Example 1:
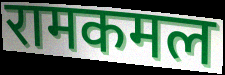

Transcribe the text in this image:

रामकमल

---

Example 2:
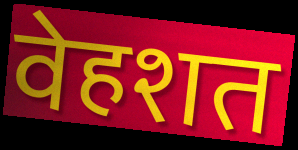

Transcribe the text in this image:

वेहशत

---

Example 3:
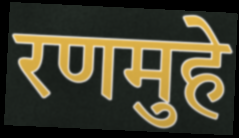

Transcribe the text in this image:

रणमुहे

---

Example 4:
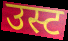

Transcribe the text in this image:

उस्ट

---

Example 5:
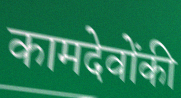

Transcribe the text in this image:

कामदेवोंकी